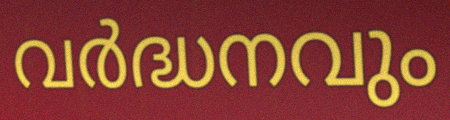
വർദ്ധനവും